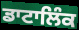
ਡਾਟਾਲਿੰਕ